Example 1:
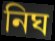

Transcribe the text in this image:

নিঘ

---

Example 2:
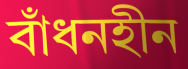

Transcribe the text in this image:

বাঁধনহীন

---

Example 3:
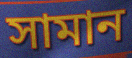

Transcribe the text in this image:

সামান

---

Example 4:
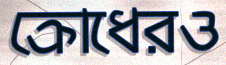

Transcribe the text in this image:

ক্রোধেরও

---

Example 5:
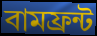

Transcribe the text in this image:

বামফ্রন্ট